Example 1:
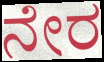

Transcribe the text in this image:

ನೇರ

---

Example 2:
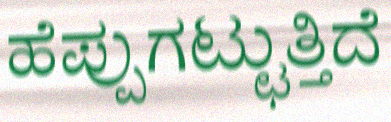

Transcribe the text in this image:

ಹೆಪ್ಪುಗಟ್ಟುತ್ತಿದೆ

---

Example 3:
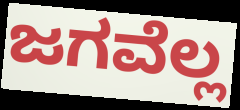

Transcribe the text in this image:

ಜಗವೆಲ್ಲ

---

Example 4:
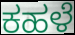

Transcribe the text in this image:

ಕಹಳೆ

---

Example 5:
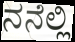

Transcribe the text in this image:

ನನೆಲ್ಲಿ